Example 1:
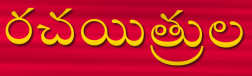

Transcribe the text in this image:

రచయిత్రుల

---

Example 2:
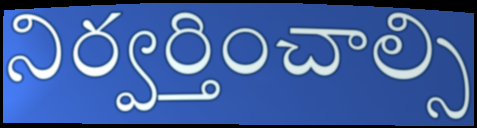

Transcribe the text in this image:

నిర్వర్తించాల్సి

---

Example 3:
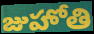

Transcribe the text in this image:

జుహోతి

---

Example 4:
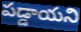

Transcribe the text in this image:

పడ్డాయని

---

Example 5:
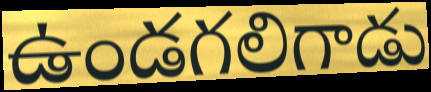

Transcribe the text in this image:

ఉండగలిగాడు